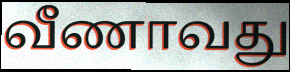
வீணாவது